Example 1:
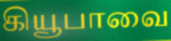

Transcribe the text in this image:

கியூபாவை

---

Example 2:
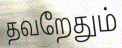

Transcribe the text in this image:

தவறேதும்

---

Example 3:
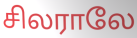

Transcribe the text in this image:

சிலராலே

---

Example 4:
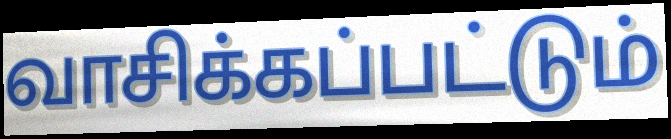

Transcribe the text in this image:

வாசிக்கப்பட்டும்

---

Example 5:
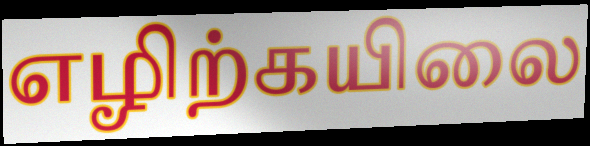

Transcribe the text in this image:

எழிற்கயிலை